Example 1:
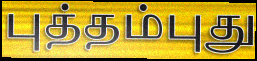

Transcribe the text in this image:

புத்தம்புது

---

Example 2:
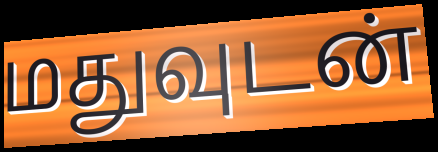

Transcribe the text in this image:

மதுவுடன்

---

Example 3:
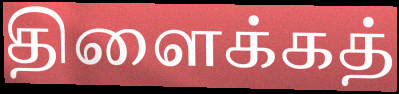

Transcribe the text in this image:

திளைக்கத்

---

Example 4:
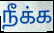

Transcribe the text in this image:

நீக்க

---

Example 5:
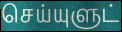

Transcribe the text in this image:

செய்யுளுட்